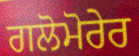
ਗਲੋਮੋਰੇਰ